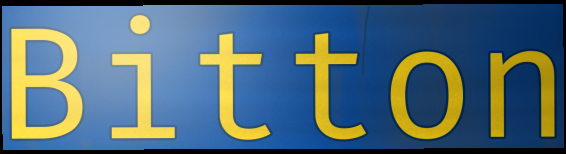
Bitton